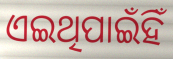
ଏଇଥିପାଇଁହିଁ